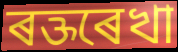
ৰক্তৰেখা